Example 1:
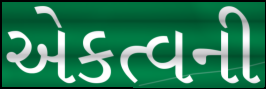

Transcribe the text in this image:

એકત્વની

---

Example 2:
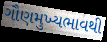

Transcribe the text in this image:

ગૌણમુખ્યભાવથી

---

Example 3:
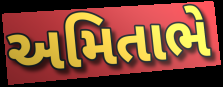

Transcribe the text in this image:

અમિતાભે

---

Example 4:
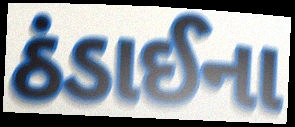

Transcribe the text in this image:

ઠંડાઈના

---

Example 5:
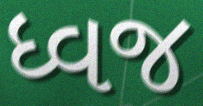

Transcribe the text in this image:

ધ્વજ